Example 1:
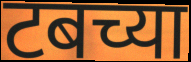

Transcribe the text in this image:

टबच्या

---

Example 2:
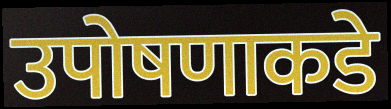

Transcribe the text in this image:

उपोषणाकडे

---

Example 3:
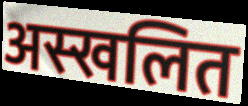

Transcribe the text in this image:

अस्खलित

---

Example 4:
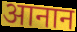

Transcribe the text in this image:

आनान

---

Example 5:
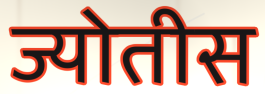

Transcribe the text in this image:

ज्योतीस